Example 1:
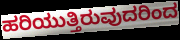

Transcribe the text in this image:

ಹರಿಯುತ್ತಿರುವುದರಿಂದ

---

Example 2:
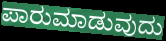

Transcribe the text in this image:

ಪಾರುಮಾಡುವುದು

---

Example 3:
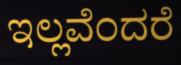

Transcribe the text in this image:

ಇಲ್ಲವೆಂದರೆ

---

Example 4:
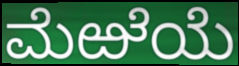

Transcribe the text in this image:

ಮೆಱೆಯೆ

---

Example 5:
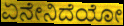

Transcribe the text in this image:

ಏನೇನಿದೆಯೋ